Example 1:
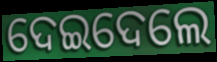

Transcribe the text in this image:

ଦେଇଦେଲେ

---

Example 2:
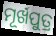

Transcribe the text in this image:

ମୂର୍ଖପୁତ୍ର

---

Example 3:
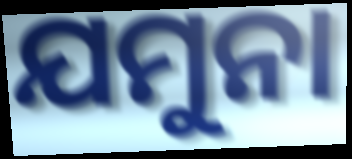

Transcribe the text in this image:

ଯମୁନା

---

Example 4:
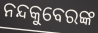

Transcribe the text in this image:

ନନ୍ଦକୁବେରଙ୍କ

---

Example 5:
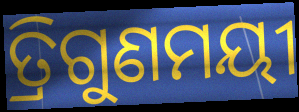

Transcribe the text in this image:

ତ୍ରିଗୁଣମୟୀ